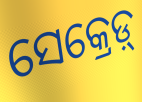
ସେକ୍ରେଡ଼୍